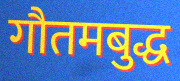
गौतमबुद्ध